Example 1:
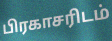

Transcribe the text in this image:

பிரகாசரிடம்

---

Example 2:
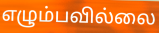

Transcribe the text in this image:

எழும்பவில்லை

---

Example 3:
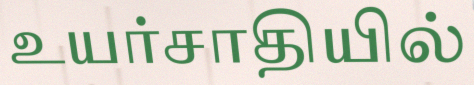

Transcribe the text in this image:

உயர்சாதியில்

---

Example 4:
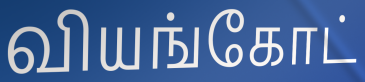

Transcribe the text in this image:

வியங்கோட்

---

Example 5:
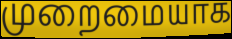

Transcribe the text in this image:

முறைமையாக